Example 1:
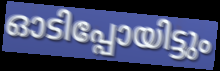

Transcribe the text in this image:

ഓടിപ്പോയിട്ടും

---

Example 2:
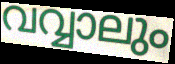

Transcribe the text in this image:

വവ്വാലും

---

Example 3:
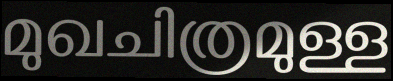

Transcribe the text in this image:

മുഖചിത്രമുള്ള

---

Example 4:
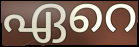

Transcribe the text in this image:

ഏറെ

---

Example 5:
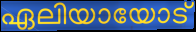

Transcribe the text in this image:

ഏലിയായോട്